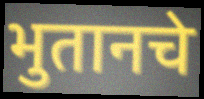
भुतानचे